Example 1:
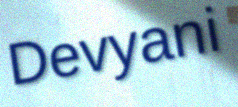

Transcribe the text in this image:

Devyani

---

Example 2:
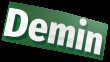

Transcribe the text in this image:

Demin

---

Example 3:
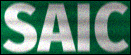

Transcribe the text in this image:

SAIC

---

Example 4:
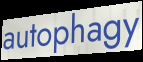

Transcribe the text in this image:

autophagy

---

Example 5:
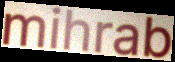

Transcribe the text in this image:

mihrab